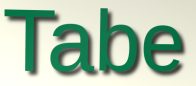
Tabe